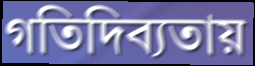
গতিদিব্যতায়